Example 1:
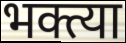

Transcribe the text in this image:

भक्त्या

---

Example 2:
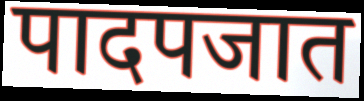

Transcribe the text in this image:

पादपजात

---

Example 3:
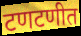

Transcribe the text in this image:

टणटणीत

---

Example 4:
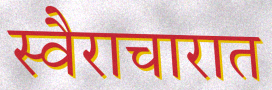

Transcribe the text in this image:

स्वैराचारात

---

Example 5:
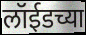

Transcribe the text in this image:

लॉईडच्या